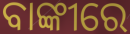
ବାଙ୍କୀରେ